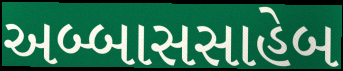
અબ્બાસસાહેબ